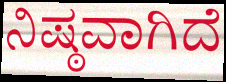
ನಿಷ್ಠವಾಗಿದೆ